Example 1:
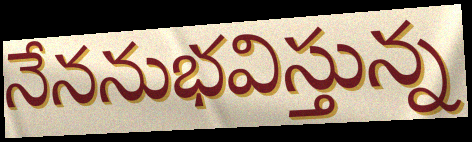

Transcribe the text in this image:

నేననుభవిస్తున్న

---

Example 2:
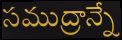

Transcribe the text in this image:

సముద్రాన్నే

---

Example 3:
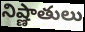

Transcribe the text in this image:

నిష్ణాతులు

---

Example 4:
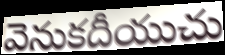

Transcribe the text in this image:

వెనుకదీయుచు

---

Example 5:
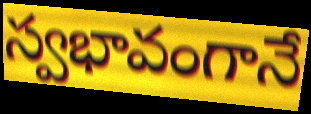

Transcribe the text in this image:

స్వభావంగానే